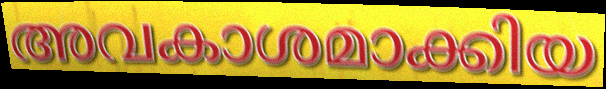
അവകാശമാക്കിയ